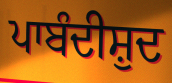
ਪਾਬੰਦੀਸ਼ੁਦ